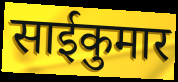
साईकुमार